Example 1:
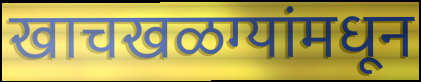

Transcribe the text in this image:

खाचखळग्यांमधून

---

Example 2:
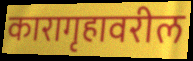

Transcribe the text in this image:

कारागृहावरील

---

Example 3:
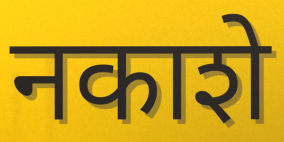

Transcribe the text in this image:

नकाशे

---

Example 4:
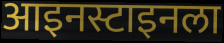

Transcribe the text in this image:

आइनस्टाइनला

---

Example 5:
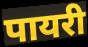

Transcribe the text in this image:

पायरी